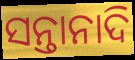
ସନ୍ତାନାଦି